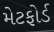
મેટફોર્ડ